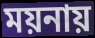
ময়নায়